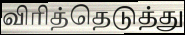
விரித்தெடுத்து